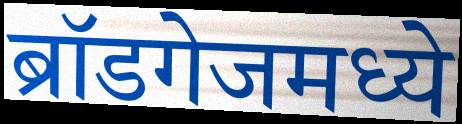
ब्रॉडगेजमध्ये